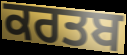
ਕਰਤਬ